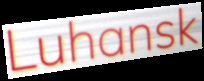
Luhansk